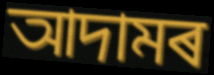
আদামৰ